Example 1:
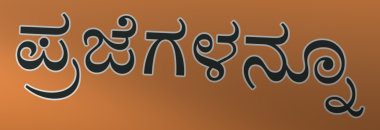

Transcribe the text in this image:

ಪ್ರಜೆಗಳನ್ನೂ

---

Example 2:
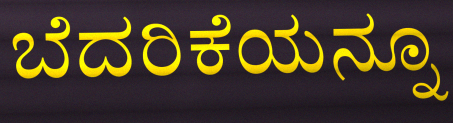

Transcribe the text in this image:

ಬೆದರಿಕೆಯನ್ನೂ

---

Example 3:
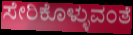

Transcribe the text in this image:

ಸೇರಿಕೊಳ್ಳುವಂತೆ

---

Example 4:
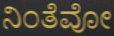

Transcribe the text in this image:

ನಿಂತೆವೋ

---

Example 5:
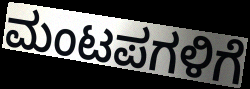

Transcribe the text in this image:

ಮಂಟಪಗಳಿಗೆ